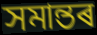
সমান্তৰ